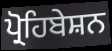
ਪ੍ਰੋਹਿਬੇਸ਼ਨ